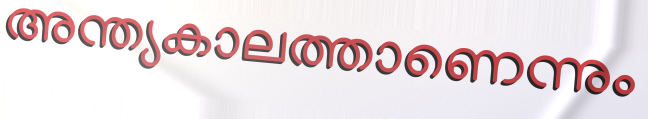
അന്ത്യകാലത്താണെന്നും